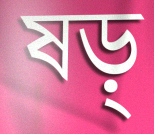
ষড়্